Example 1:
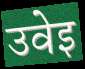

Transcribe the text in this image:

उवेइ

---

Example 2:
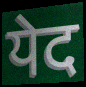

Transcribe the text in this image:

येद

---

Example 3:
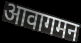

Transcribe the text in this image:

आवागमन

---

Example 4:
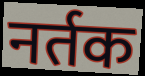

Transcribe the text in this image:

नर्तक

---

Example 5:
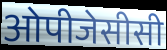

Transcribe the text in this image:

ओपीजेसीसी